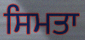
ਸਿਮਤਾ